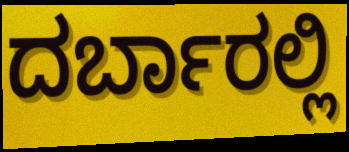
ದರ್ಬಾರಲ್ಲಿ